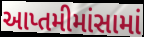
આપ્તમીમાંસામાં